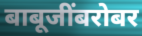
बाबूजींबरोबर